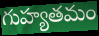
గుహ్యతమం